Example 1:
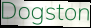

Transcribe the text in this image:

Dogston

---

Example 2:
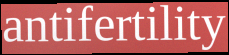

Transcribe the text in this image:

antifertility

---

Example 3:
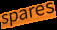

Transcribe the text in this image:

spares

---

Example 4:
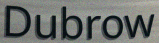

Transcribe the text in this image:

Dubrow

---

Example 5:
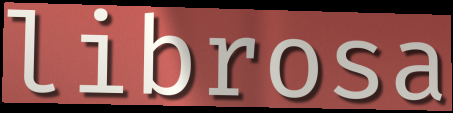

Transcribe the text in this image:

librosa